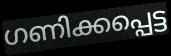
ഗണിക്കപ്പെട്ട